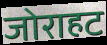
जोराहट